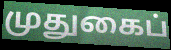
முதுகைப்